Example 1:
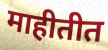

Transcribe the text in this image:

माहीतीत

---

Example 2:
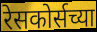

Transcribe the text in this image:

रेसकोर्सच्या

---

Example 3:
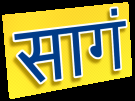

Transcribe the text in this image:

सागं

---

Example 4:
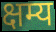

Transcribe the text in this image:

क्षम्य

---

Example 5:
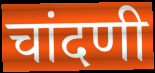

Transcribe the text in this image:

चांदणी